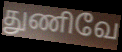
துணிவே